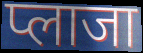
प्लाजा